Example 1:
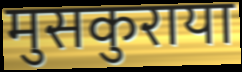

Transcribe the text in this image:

मुसकुराया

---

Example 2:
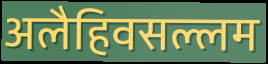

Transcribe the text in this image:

अलैहिवसल्लम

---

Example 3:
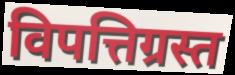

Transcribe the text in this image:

विपत्तिग्रस्त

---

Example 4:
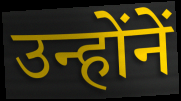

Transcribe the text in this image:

उन्‍होंनें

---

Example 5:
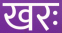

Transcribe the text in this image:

खरः